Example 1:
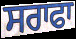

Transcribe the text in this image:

ਸਰਾਫਾ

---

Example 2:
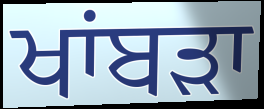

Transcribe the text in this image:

ਖਾਂਬੜਾ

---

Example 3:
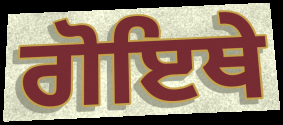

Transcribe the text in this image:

ਗੋਇਥੇ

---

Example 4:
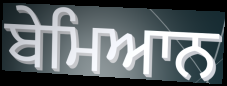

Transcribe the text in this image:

ਬੇਮਿਆਨ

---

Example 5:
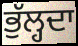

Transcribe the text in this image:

ਭੁੱਲ੍ਹਦਾ